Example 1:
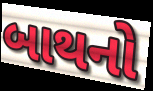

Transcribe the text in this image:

બાથનો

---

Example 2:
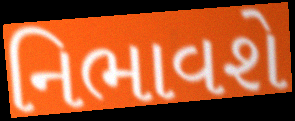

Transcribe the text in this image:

નિભાવશે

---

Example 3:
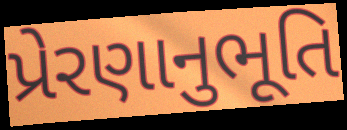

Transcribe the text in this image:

પ્રેરણાનુભૂતિ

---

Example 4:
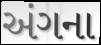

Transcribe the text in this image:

અંગના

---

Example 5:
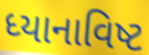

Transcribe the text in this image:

ધ્યાનાવિષ્ટ